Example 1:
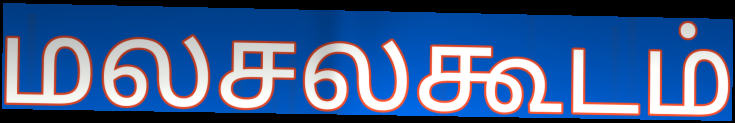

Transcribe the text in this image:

மலசலகூடம்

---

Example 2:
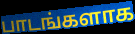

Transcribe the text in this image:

பாடங்களாக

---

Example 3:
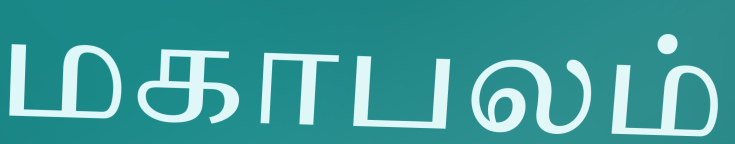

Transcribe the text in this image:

மகாபலம்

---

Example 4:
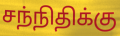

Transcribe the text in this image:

சந்நிதிக்கு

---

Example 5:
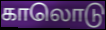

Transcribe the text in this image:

காலொடு